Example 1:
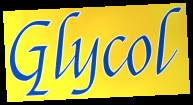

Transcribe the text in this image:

Glycol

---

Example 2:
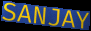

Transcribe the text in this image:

SANJAY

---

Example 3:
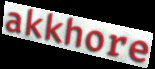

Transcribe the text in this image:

akkhore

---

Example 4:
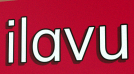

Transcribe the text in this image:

ilavu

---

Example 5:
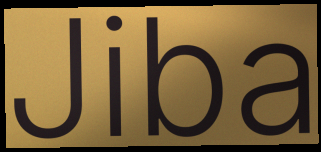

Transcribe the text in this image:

Jiba